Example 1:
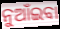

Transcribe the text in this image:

ନୁଆଁଇବା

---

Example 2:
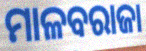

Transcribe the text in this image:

ମାଳବରାଜା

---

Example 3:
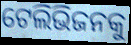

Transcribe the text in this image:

ଟେଲିଭିଜନକୁ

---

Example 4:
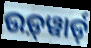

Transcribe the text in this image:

ଉଡ଼୍‍ୱାର୍ଡ଼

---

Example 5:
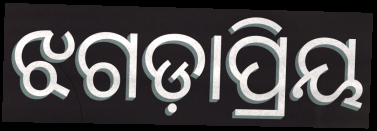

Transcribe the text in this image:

ଝଗଡ଼ାପ୍ରିୟ